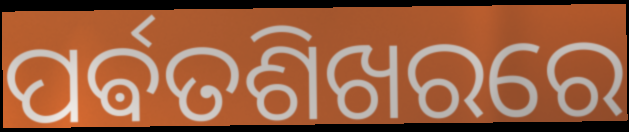
ପର୍ଵତଶିଖରରେ